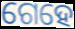
ଗେହେ